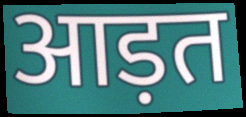
आड़त